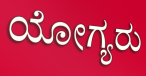
ಯೋಗ್ಯರು